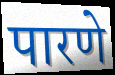
पारणे